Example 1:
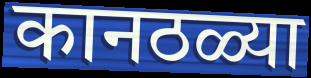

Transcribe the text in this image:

कानठळ्या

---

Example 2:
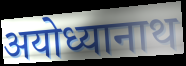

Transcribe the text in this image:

अयोध्यानाथ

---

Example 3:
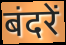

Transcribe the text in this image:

बंदरें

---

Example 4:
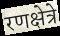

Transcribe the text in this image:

रणक्षेत्रे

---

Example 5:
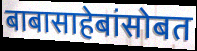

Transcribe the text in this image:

बाबासाहेबांसोबत